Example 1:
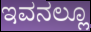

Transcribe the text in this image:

ಇವನಲ್ಲೂ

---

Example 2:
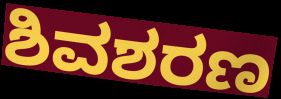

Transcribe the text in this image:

ಶಿವಶರಣ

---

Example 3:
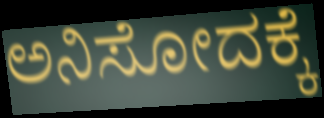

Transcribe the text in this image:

ಅನಿಸೋದಕ್ಕೆ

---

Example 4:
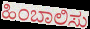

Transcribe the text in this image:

ಹಿಂಬಾಲಿಸು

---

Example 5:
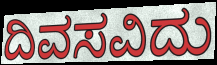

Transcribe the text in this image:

ದಿವಸವಿದು